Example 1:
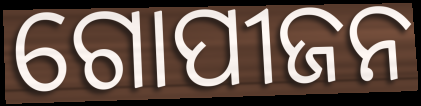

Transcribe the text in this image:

ଗୋପୀଜନ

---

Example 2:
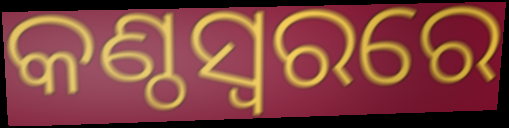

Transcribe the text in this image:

କଣ୍ଠସ୍ୱରରେ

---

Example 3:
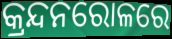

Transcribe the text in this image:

କ୍ରନ୍ଦନରୋଳରେ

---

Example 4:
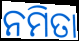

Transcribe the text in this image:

ନମିତା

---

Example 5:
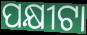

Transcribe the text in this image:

ପକ୍ଷୀଟା